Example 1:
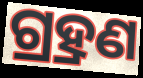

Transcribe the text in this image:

ଗ୍ର୍ରହଣ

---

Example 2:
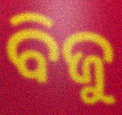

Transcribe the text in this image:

ବିଜୁ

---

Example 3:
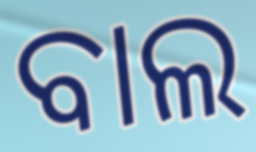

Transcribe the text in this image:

ବାଲ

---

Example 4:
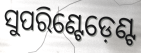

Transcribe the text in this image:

ସୁପରିଣ୍ଟେଡ଼େଣ୍ଟ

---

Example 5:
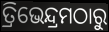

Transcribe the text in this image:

ତ୍ରିଭେନ୍ଦ୍ରମଠାରୁ